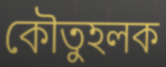
কৌতুহলক